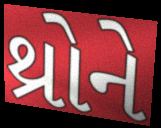
થ્રોને